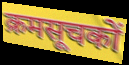
क्रमसूचकों